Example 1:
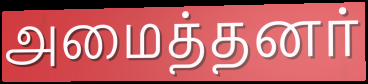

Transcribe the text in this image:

அமைத்தனர்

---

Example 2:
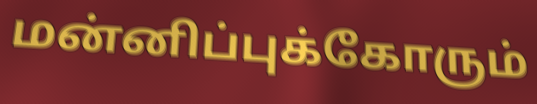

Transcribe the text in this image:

மன்னிப்புக்கோரும்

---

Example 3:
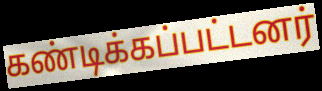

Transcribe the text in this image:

கண்டிக்கப்பட்டனர்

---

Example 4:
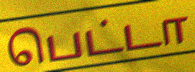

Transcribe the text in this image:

பெட்டா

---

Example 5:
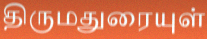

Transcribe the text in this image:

திருமதுரையுள்